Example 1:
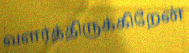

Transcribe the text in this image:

வளர்த்திருக்கிறேன்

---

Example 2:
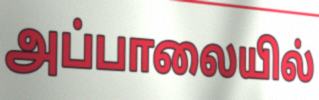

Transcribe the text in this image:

அப்பாலையில்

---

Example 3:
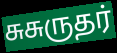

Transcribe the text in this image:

சுசுருதர்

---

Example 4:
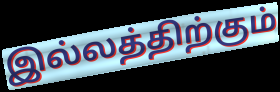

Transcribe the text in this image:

இல்லத்திற்கும்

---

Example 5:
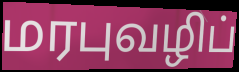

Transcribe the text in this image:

மரபுவழிப்